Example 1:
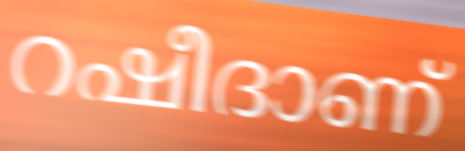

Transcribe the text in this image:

റഷീദാണ്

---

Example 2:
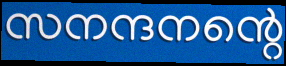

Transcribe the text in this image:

സനന്ദനന്റെ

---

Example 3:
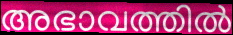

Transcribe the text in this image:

അഭാവത്തിൽ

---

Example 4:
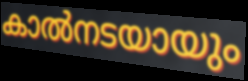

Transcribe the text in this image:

കാൽനടയായും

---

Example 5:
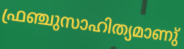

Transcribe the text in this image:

ഫ്രഞ്ചുസാഹിത്യമാണു്